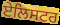
ਏਲਿਸਟਰ